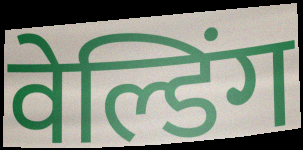
वेल्डिंग